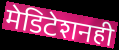
मेडिटेशनही